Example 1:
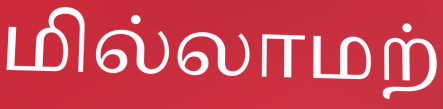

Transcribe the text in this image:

மில்லாமற்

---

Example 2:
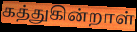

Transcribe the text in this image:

கத்துகின்றாள்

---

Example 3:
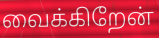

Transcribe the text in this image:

வைக்கிறேன்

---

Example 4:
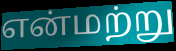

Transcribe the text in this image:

என்மற்று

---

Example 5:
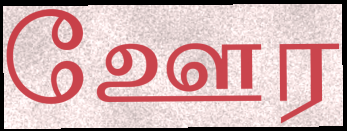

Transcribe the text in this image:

ஊேர